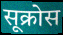
सूक्रोस